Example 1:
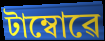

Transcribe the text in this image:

টাম্বোৱে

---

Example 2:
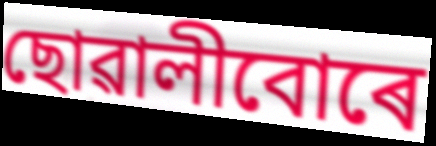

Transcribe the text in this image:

ছোৱালীবোৰে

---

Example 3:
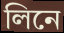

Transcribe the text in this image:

লিনে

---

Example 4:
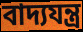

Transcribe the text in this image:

বাদ্যযন্ত্ৰ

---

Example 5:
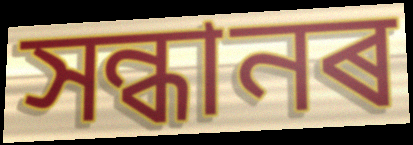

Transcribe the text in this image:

সন্ধানৰ